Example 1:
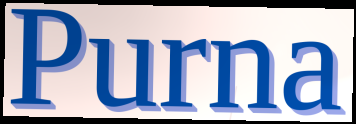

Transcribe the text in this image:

Purna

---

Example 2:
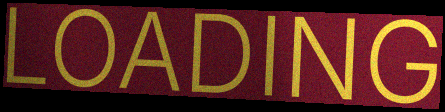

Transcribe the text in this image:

LOADING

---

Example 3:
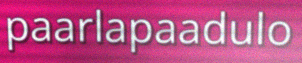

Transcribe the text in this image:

paarlapaadulo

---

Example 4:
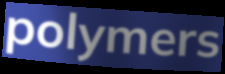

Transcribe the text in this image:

polymers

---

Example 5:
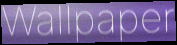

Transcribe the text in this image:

Wallpaper